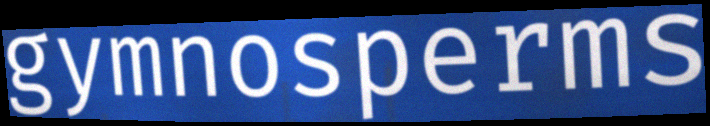
gymnosperms